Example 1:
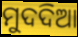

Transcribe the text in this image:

ମୁଦଦିଆ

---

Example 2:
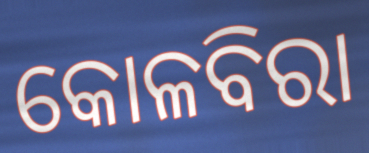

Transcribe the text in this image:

କୋଳବିରା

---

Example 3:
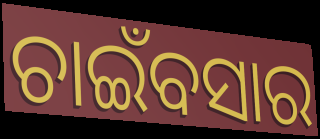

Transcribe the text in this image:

ଚାଇଁବସାର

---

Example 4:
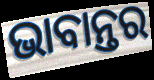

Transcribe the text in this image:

ଭାବାନ୍ତର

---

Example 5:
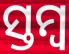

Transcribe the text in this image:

ସ୍ତମ୍ଵ